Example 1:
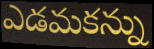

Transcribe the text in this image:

ఎడమకన్ను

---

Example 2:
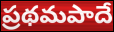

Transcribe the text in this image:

ప్రథమపాదే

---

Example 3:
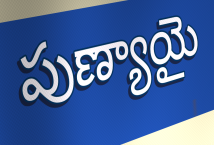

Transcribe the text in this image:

పుణ్యాయై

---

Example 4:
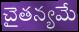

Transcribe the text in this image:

చైతన్యమే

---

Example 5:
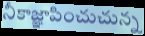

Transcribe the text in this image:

నీకాజ్ఞాపించుచున్న